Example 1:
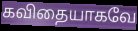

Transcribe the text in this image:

கவிதையாகவே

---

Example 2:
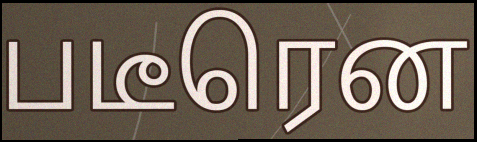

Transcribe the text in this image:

படீரென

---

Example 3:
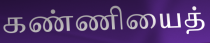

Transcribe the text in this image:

கண்ணியைத்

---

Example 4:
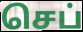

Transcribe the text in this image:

செப்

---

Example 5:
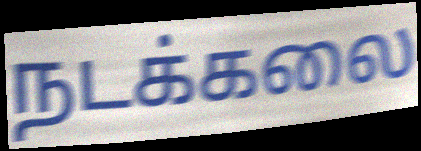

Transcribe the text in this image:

நடக்கலை